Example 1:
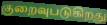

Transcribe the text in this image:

குறைவுபடுகிறது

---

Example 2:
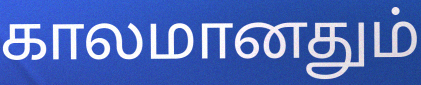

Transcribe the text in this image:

காலமானதும்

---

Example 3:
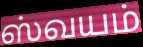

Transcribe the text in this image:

ஸ்வயம்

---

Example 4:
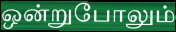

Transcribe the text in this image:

ஒன்றுபோலும்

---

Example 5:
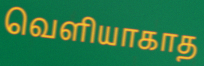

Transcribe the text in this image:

வெளியாகாத